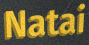
Natai